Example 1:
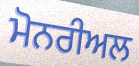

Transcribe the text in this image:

ਮੋਨਰੀਅਲ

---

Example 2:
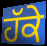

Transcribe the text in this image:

ਹੱਕੇ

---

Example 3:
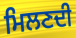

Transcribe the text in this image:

ਮਿਲਣਦੀ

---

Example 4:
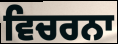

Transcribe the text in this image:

ਵਿਚਰਨਾ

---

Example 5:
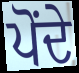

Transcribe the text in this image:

ਪੋਂਦੇ